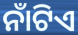
ନାଁଟିଏ